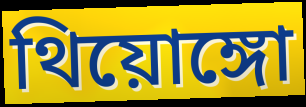
থিয়োঙ্গো